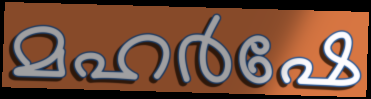
മഹർഷേ